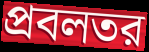
প্রবলতর